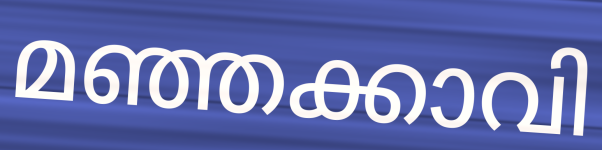
മഞ്ഞക്കാവി